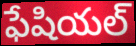
ఫేషియల్